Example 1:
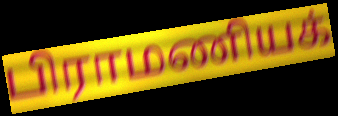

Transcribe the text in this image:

பிராமணியக்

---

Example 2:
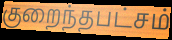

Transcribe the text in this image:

குறைந்தபட்சம்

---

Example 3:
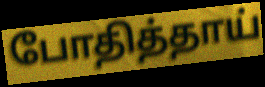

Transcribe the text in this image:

போதித்தாய்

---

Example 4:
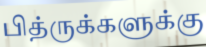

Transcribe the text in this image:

பித்ருக்களுக்கு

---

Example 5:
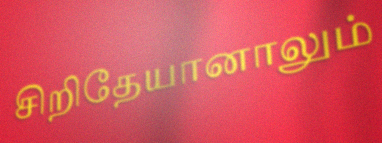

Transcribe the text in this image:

சிறிதேயானாலும்